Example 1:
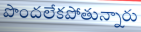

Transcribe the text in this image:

పొందలేకపోతున్నారు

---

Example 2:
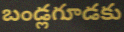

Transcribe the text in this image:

బండ్లగూడకు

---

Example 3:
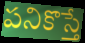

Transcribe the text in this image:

పనికొస్తే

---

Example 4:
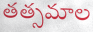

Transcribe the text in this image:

తత్సమాల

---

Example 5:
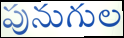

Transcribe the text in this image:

పునుగుల